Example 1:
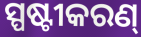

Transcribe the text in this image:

ସ୍ପଷ୍ଟୀକରଣ୍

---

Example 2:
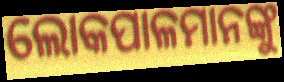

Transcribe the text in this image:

ଲୋକପାଳମାନଙ୍କୁ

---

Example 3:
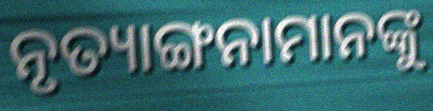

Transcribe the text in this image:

ନୃତ୍ୟାଙ୍ଗନାମାନଙ୍କୁ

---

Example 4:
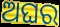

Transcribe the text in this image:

ଅଘର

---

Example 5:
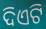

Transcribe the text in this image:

ଦିଏଟି